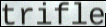
trifle